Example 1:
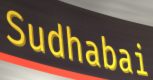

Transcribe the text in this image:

Sudhabai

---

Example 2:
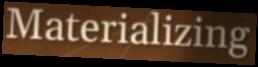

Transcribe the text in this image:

Materializing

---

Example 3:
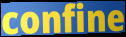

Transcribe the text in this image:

confine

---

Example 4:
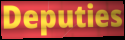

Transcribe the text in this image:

Deputies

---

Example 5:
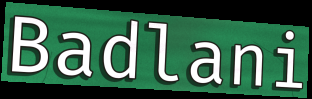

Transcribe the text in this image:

Badlani